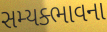
સમ્યક્ભાવના